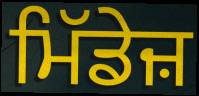
ਮਿੱਡੇਜ਼